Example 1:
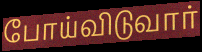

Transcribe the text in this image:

போய்விடுவார்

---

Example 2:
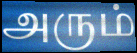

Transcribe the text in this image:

அரும்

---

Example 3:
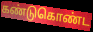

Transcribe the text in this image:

கண்டுகொண்ட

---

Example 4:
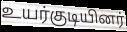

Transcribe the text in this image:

உயர்குடியினர்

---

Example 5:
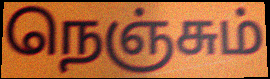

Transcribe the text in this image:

நெஞ்சும்